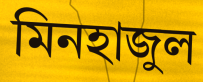
মিনহাজুল